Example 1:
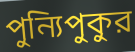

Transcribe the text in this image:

পুন্যিপুকুর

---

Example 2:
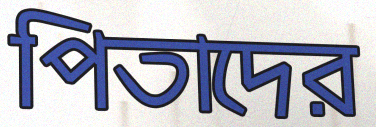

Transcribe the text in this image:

পিতাদের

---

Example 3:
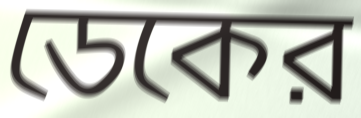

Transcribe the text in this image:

ডেকের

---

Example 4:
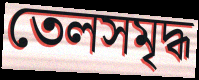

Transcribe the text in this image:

তেলসমৃদ্ধ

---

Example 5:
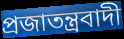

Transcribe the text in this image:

প্রজাতন্ত্রবাদী